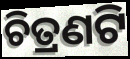
ଚିତ୍ରଣଟି